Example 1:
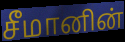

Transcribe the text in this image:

சீமானின்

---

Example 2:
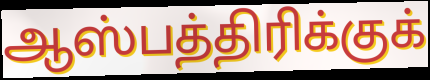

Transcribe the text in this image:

ஆஸ்பத்திரிக்குக்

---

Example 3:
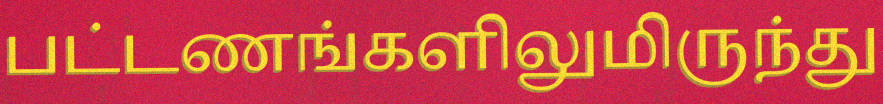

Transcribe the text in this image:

பட்டணங்களிலுமிருந்து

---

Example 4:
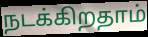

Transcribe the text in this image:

நடக்கிறதாம்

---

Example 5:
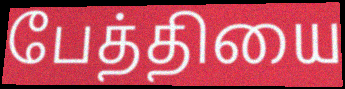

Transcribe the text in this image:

பேத்தியை